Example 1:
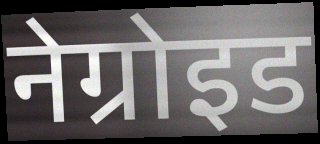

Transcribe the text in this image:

नेग्रोइड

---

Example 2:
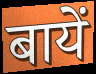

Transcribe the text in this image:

बायें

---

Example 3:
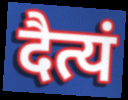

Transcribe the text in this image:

दैत्यं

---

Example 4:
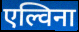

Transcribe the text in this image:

एल्विना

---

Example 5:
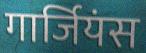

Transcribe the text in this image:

गार्जियंस